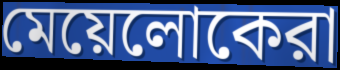
মেয়েলোকেরা